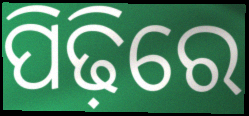
ପିଢ଼ିରେ